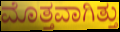
ಮೊತ್ತವಾಗಿತ್ತು